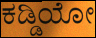
ಕಡ್ಡಿಯೋ